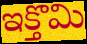
ఇక్తొమి